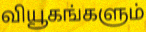
வியூகங்களும்